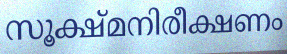
സൂക്ഷ്മനിരീക്ഷണം